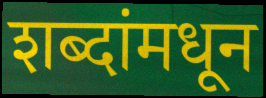
शब्दांमधून